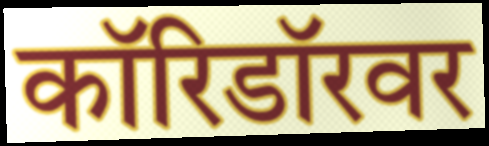
कॉरिडॉरवर